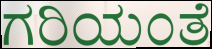
ಗರಿಯಂತೆ